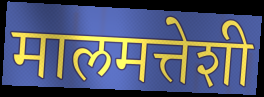
मालमत्तेशी